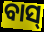
ବାସ୍